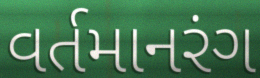
વર્તમાનરંગ